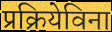
प्रक्रियेविना